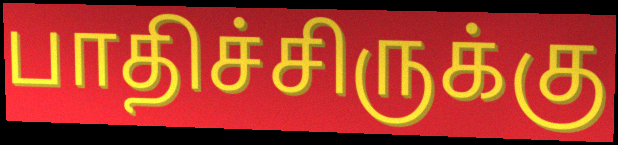
பாதிச்சிருக்கு